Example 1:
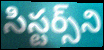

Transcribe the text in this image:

సిస్టర్స్‌ని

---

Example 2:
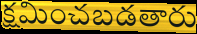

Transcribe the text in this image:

క్షమించబడతారు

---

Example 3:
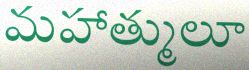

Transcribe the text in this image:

మహాత్ములూ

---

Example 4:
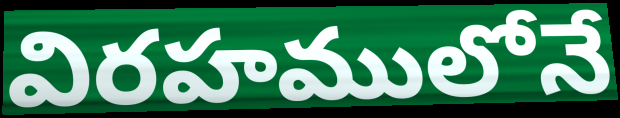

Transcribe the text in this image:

విరహములోనే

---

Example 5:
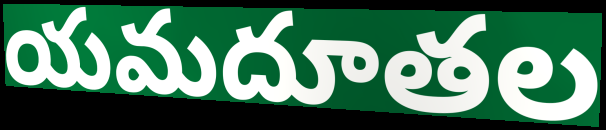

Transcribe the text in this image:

యమదూతల